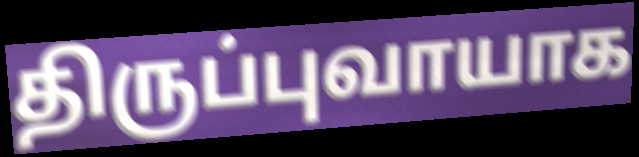
திருப்புவாயாக